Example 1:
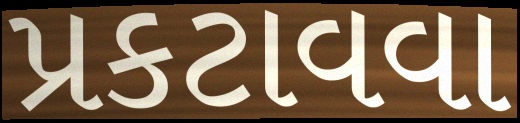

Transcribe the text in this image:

પ્રકટાવવા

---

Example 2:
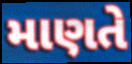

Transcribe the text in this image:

માણતે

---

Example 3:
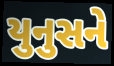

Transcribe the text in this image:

યુનુસને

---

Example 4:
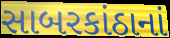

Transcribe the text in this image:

સાબરકાંઠાનાં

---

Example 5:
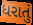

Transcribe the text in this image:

ધરાતું